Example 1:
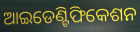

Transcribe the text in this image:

ଆଇଡେଣ୍ଟିଫିକେଶନ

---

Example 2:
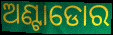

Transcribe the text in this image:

ଅଣ୍ଟାଡୋର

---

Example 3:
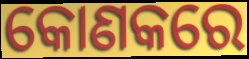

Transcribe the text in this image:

କୋଣକରେ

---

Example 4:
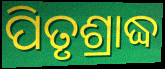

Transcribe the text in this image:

ପିତୃଶ୍ରାଦ୍ଧ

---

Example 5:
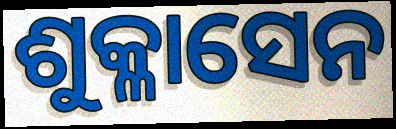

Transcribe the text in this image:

ଶୁକ୍ଳାସେନ